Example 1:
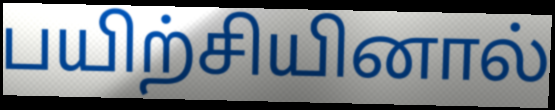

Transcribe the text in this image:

பயிற்சியினால்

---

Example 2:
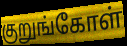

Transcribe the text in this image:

குறுங்கோள்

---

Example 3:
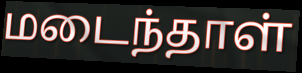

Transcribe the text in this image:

மடைந்தாள்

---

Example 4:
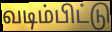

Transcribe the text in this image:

வடிம்பிட்டு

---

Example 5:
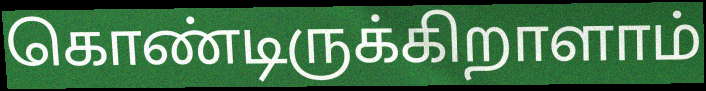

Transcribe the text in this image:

கொண்டிருக்கிறாளாம்